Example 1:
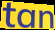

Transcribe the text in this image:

tan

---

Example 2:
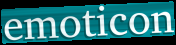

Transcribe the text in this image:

emoticon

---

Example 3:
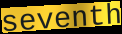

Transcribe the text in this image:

seventh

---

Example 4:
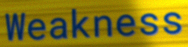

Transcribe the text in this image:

Weakness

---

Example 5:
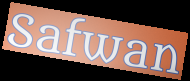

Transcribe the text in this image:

Safwan